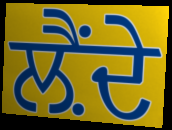
ਲ਼ੈਂਦੇ